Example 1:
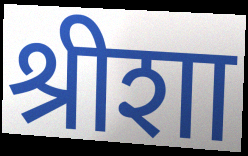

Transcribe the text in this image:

श्रीशा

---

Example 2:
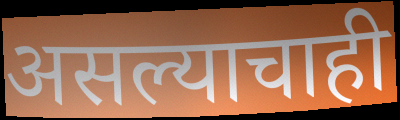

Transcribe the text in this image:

असल्याचाही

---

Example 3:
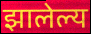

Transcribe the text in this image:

झालेल्य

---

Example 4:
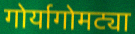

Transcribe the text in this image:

गोर्यागोमट्या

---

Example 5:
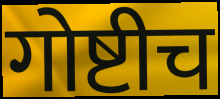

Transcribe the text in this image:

गोष्टीच